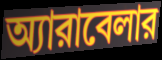
অ্যারাবেলার